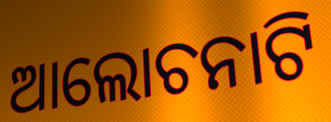
ଆଲୋଚନାଟି